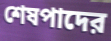
শেষপাদের